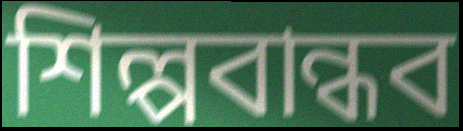
শিল্পবান্ধব